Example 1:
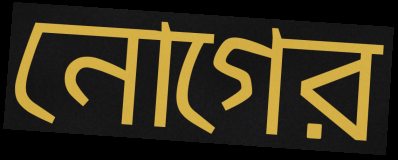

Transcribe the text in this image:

নোগের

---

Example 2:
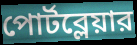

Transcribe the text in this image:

পোর্টব্লেয়ার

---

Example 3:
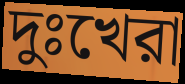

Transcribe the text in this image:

দুঃখেরা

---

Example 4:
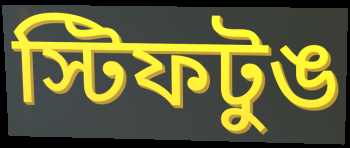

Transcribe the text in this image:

স্টিফটুঙ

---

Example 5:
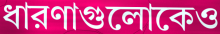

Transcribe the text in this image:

ধারণাগুলোকেও